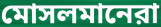
মোসলমানেরা